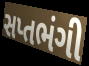
સપ્તભંગી